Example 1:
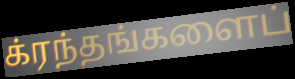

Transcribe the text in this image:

க்ரந்தங்களைப்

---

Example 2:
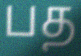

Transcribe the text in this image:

பத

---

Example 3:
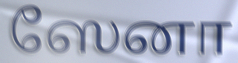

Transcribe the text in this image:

ஸேனா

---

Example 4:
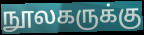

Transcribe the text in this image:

நூலகருக்கு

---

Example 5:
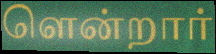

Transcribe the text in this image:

ளென்றார்